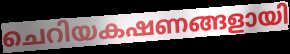
ചെറിയകഷണങ്ങളായി